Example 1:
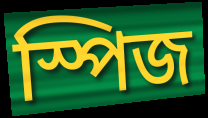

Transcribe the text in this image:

স্পিজ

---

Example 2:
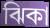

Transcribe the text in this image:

ঝিকা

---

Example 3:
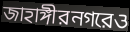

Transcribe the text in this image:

জাহাঙ্গীরনগরেও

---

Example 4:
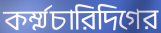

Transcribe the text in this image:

কর্ম্মচারিদিগের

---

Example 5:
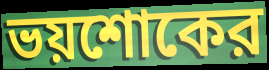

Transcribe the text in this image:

ভয়শোকের